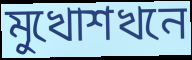
মুখোশখনে